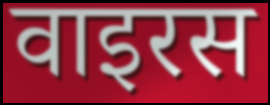
वाइरस